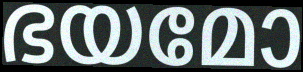
ഭയമോ